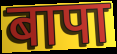
बापा